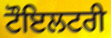
ਟੌਇਲਟਰੀ